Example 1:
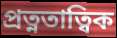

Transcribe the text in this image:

প্ৰত্নতাত্বিক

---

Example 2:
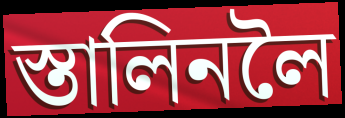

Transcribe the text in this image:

স্তালিনলৈ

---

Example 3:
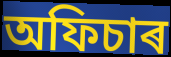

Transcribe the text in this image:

অফিচাৰ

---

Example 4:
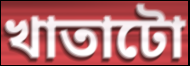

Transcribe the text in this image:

খাতাটো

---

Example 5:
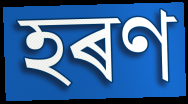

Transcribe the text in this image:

হৰণ